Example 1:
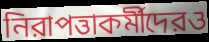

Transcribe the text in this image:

নিরাপত্তাকর্মীদেরও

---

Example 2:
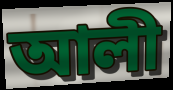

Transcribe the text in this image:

আলী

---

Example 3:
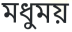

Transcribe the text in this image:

মধুময়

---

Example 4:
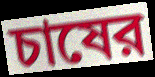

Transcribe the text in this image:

চাষের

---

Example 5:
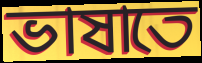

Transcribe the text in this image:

ভাষাতে